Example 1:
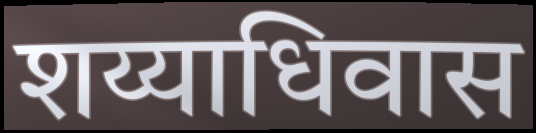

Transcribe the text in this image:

शय्याधिवास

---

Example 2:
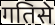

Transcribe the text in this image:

गतिसे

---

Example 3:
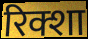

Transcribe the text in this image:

रिक्‍शा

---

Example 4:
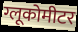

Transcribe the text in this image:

ग्लूकोमीटर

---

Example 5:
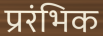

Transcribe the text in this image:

प्ररंभिक